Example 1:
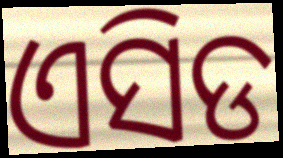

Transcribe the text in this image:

ଏସିଡ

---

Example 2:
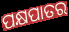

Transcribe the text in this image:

ପକ୍ଷପାତର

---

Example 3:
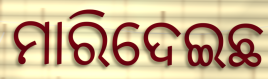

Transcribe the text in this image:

ମାରିଦେଇଛ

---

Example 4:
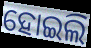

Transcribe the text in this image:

ହୋଇଲି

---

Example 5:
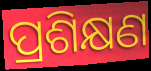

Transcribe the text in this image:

ପ୍ରଶିକ୍ଷଣ